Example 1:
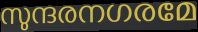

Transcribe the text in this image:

സുന്ദരനഗരമേ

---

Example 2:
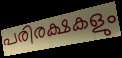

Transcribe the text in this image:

പരിരക്ഷകളും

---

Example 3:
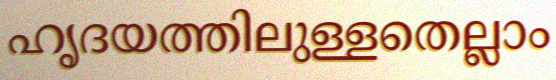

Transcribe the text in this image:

ഹൃദയത്തിലുള്ളതെല്ലാം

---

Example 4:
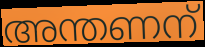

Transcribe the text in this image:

അന്തണന്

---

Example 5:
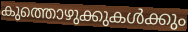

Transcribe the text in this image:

കുത്തൊഴുക്കുകൾക്കും